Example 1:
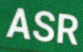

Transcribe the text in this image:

ASR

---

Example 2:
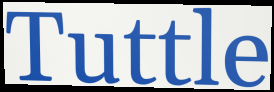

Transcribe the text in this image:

Tuttle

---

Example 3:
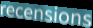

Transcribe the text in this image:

recensions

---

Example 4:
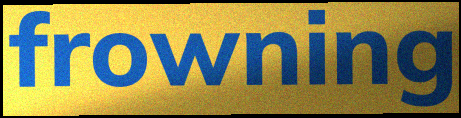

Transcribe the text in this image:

frowning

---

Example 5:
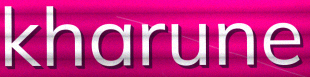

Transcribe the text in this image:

kharune